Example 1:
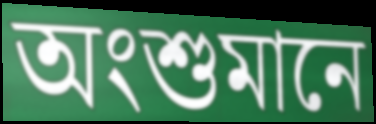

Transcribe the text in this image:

অংশুমানে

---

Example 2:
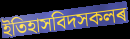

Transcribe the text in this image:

ইতিহাসবিদসকলৰ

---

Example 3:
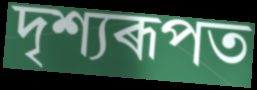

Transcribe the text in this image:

দৃশ্যৰূপত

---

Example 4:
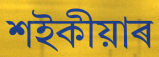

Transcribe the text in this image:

শইকীয়াৰ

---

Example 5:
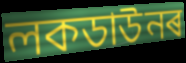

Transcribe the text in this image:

লকডাউনৰ